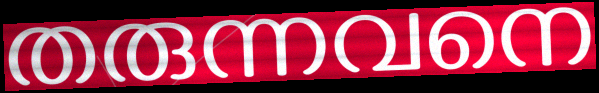
തരുന്നവനെ